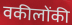
वकीलोंकी